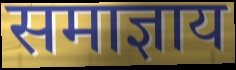
समाज्ञाय